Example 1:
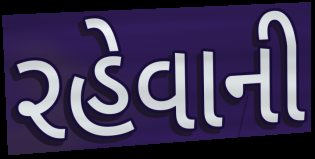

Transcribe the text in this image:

રહેવાની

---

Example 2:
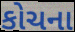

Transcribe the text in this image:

કોચના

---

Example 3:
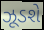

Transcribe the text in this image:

ઝૂડશે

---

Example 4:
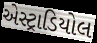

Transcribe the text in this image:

એસ્ટ્રાડિયોલ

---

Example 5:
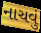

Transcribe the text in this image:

નાચવું